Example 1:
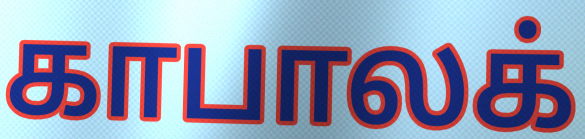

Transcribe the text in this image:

காபாலக்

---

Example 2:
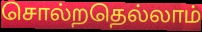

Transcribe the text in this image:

சொல்றதெல்லாம்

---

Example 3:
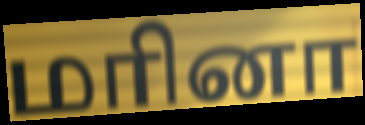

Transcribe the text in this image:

மரினா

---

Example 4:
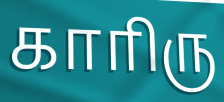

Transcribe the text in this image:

காரிரு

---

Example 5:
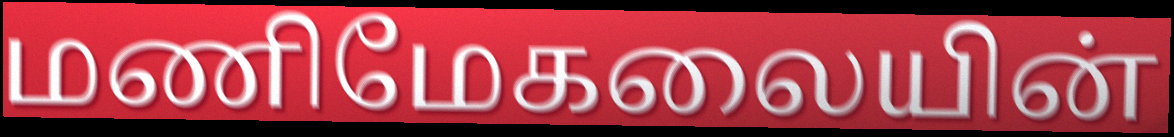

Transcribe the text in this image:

மணிமேகலையின்